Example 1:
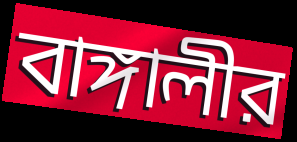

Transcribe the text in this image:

বাঙ্গালীর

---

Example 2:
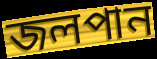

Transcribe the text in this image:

জলপান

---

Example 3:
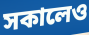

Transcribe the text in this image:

সকালেও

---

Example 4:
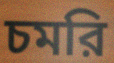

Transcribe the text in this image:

চমরি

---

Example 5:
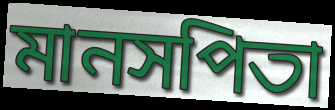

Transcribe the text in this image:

মানসপিতা